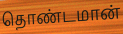
தொண்டமான்